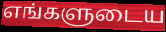
எங்களுடைய